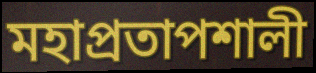
মহাপ্রতাপশালী